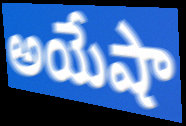
అయేషా